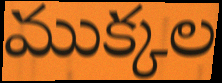
ముక్కల